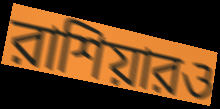
রাশিয়ারও